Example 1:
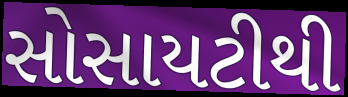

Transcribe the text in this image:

સોસાયટીથી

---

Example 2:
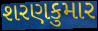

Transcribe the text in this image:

શરણકુમાર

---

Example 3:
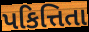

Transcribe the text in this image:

પકિત્તિતા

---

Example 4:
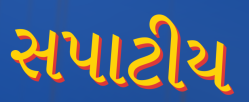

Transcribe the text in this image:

સપાટીય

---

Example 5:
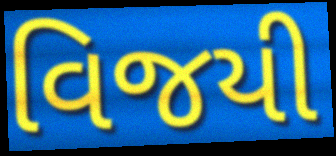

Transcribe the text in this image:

વિજયી